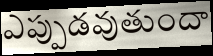
ఎప్పుడవుతుందా